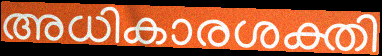
അധികാരശക്തി